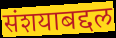
संशयाबद्दल